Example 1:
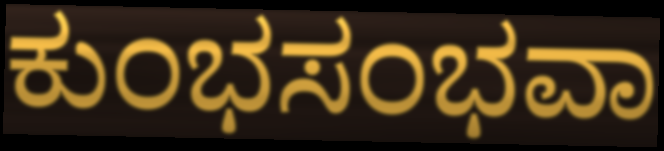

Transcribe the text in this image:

ಕುಂಭಸಂಭವಾ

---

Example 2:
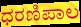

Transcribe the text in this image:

ಧರಣಿಪಾಲ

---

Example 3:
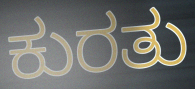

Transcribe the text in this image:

ಕುರತು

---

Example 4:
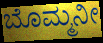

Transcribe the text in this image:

ಬೊಮ್ಮನೀ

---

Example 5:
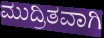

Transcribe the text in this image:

ಮುದ್ರಿತವಾಗಿ